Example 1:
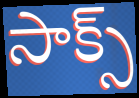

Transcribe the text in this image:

సాక్స్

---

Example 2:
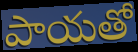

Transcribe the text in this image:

పాయతో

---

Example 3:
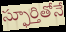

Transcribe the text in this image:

స్ఫూర్తితోనే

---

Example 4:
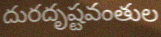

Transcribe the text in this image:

దురదృష్టవంతుల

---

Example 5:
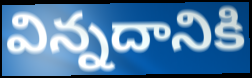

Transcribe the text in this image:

విన్నదానికి